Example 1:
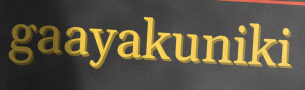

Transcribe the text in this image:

gaayakuniki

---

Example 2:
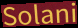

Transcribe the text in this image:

Solani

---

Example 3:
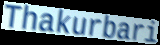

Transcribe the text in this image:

Thakurbari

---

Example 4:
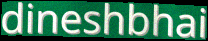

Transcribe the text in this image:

dineshbhai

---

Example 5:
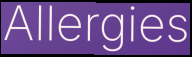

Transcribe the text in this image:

Allergies